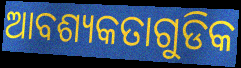
ଆବଶ୍ୟକତାଗୁଡିକ